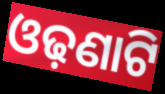
ଓଢ଼ଣାଟି